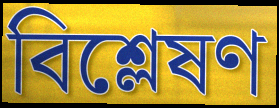
বিশ্লেষণ